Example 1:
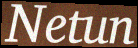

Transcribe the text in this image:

Netun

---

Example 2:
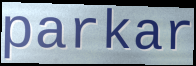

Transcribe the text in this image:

parkar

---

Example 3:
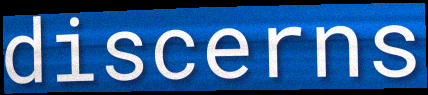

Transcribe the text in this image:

discerns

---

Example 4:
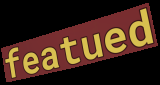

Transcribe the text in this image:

featued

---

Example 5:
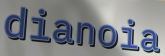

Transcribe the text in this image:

dianoia